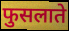
फुसलाते